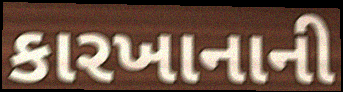
કારખાનાની